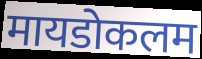
मायडोकलम